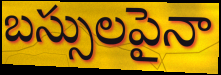
బస్సులపైనా